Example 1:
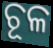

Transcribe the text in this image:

ଚୂଳ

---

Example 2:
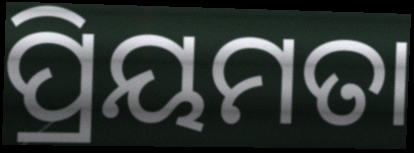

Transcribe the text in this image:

ପ୍ରିୟମତା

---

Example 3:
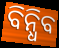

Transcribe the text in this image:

ବିନ୍ଧିବ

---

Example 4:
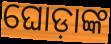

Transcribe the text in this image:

ଘୋଡ଼ାଙ୍କ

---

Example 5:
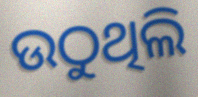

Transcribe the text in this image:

ଉଠୁଥିଲି